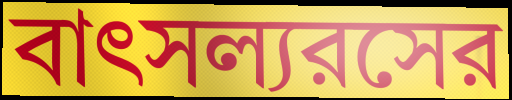
বাৎসল্যরসের